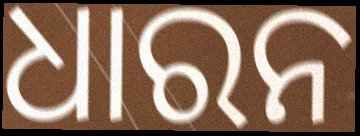
ଧାରନ